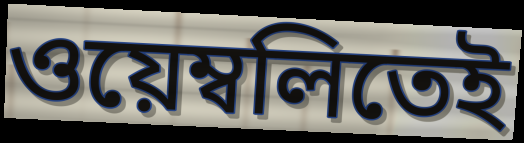
ওয়েম্বলিতেই